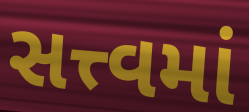
સત્ત્વમાં